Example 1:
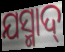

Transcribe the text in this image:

ଯସ୍ମାଦ୍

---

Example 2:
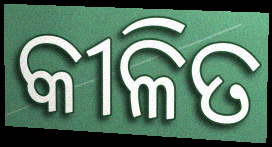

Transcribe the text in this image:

କୀଳିତ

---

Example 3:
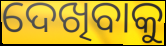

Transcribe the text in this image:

ଦେଖିବାକୁ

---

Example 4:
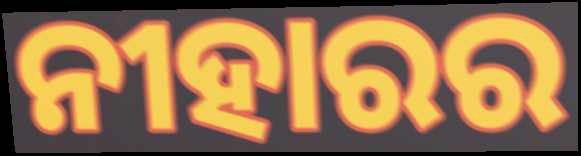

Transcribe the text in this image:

ନୀହାରର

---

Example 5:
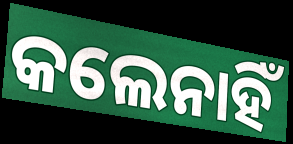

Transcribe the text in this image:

କଲେନାହିଁ